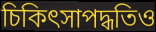
চিকিৎসাপদ্ধতিও